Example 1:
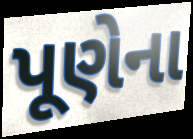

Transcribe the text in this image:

પૂણેના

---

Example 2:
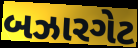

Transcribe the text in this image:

બઝારગેટ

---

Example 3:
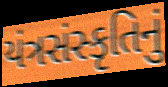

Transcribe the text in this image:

યંત્રસંસ્કૃતિનું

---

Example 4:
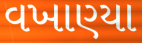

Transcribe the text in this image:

વખાણ્યા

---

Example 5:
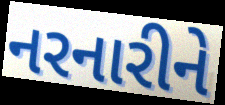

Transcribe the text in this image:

નરનારીને